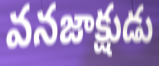
వనజాక్షుడు